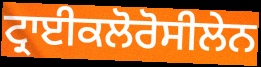
ਟ੍ਰਾਈਕਲੋਰੋਸੀਲੇਨ